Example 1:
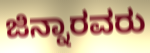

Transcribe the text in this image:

ಜಿನ್ನಾರವರು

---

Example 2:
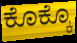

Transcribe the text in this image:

ಕೊಕ್ಕೊ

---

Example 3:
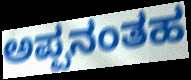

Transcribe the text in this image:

ಅಪ್ಪನಂತಹ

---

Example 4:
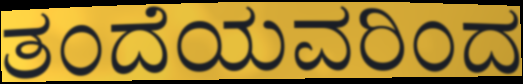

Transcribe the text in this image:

ತಂದೆಯವರಿಂದ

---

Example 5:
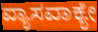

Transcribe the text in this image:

ವ್ಯಾಸವಾಕ್ಯೇ